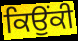
ਕਿਉਂਕੀ